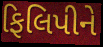
ફિલિપીને